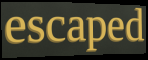
escaped